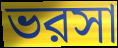
ভরসা